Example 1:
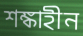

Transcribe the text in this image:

শঙ্কাহীন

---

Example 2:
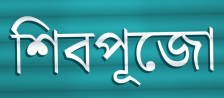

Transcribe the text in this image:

শিবপূজো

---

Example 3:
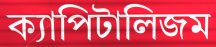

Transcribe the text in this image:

ক্যাপিটালিজম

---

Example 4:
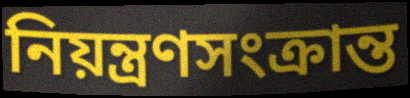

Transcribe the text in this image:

নিয়ন্ত্রণসংক্রান্ত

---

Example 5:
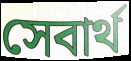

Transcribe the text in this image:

সেবার্থ